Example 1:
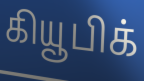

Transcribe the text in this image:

கியூபிக்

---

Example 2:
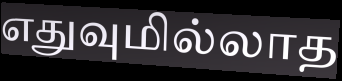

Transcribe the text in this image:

எதுவுமில்லாத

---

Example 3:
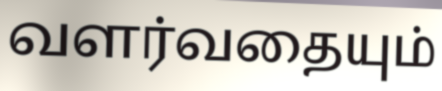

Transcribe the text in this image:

வளர்வதையும்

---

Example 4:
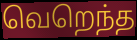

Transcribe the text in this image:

வெறெந்த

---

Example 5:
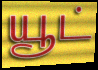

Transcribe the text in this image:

யூட்